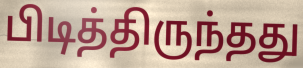
பிடித்திருந்தது